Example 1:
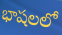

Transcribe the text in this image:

భాషలలో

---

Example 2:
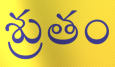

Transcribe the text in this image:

శ్రుతం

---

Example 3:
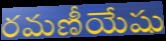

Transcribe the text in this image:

రమణీయేషు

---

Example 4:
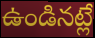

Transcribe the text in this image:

ఉండినట్లే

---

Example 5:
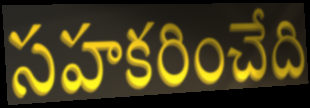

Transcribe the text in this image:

సహకరించేది